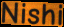
Nishi